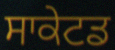
ਸਾਕੇਟਡ